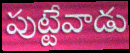
పుట్టేవాడు